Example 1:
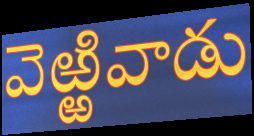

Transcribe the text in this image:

వెఱ్ఱివాడు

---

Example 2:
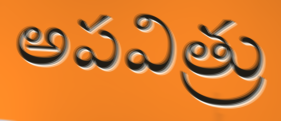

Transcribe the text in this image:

అపవిత్రు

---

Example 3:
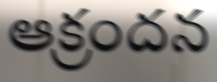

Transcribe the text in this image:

ఆక్రందన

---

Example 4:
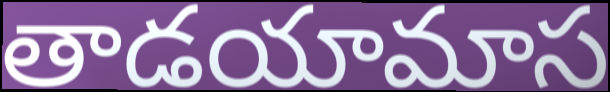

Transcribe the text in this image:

తాడయామాస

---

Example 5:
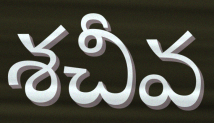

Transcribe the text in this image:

శచీవ